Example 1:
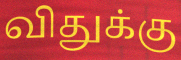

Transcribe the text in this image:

விதுக்கு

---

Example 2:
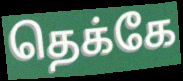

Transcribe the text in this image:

தெக்கே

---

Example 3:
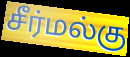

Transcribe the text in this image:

சீர்மல்கு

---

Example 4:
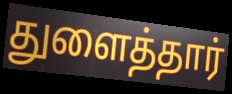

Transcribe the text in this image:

துளைத்தார்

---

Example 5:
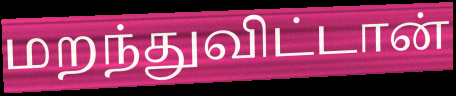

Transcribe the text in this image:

மறந்துவிட்டான்